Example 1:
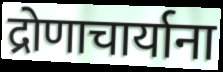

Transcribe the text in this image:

द्रोणाचार्याना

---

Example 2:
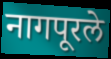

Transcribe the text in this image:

नागपूरले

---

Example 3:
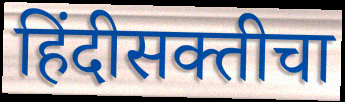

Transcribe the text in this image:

हिंदीसक्तीचा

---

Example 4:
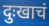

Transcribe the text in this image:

दुःखाचं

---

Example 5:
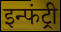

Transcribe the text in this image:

इन्फंट्री